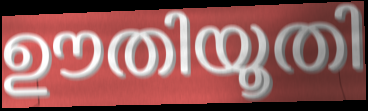
ഊതിയൂതി